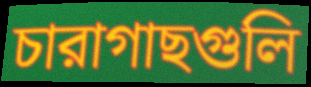
চারাগাছগুলি